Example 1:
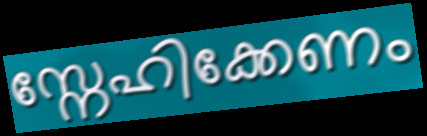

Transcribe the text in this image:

സ്നേഹിക്കേണം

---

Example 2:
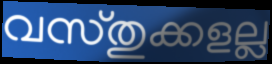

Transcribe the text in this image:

വസ്തുക്കളല്ല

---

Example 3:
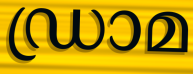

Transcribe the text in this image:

ഡ്രാമ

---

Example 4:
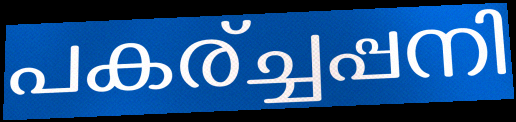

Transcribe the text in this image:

പകര്ച്ചപ്പനി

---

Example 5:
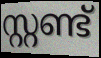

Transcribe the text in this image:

സ്റ്റണ്ട്